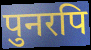
पुनरपि